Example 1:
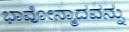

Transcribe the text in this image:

ಭಾವೋನ್ಮಾದವನ್ನು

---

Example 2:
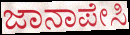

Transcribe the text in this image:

ಜಾನಾಪೇಸಿ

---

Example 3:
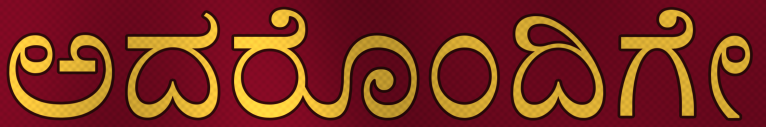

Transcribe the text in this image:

ಅದರೊಂದಿಗೇ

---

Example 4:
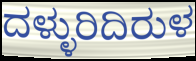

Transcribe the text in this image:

ದಳ್ಳುರಿದಿರುಳ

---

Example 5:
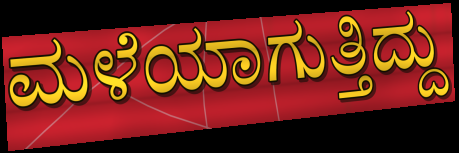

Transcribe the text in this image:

ಮಳೆಯಾಗುತ್ತಿದ್ದು